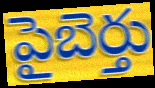
పైబెర్తు